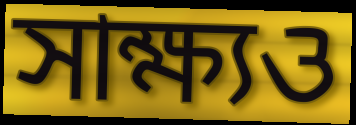
সাক্ষ্যও